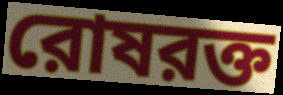
রোষরক্ত